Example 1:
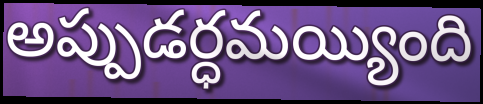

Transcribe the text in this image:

అప్పుడర్ధమయ్యింది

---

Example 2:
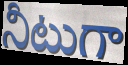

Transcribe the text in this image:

నీటుగా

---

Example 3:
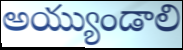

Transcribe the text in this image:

అయ్యుండాలి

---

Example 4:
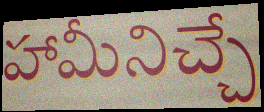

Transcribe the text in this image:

హామీనిచ్చే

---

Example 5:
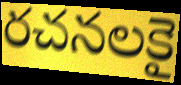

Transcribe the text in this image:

రచనలకై